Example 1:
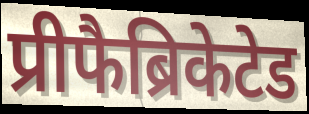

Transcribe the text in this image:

प्रीफैब्रिकेटेड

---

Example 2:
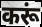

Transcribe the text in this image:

करूं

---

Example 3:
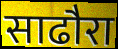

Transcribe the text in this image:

साढौरा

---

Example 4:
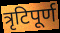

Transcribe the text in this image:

त्रृटिपूर्ण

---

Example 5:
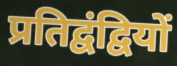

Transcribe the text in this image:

प्रतिद्वंद्वियों